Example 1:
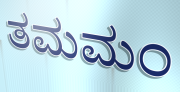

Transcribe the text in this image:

ತಮಮಂ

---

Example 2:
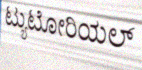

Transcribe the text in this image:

ಟ್ಯುಟೋರಿಯಲ್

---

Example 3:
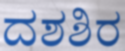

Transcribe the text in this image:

ದಶಶಿರ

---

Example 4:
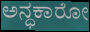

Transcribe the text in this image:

ಅನ್ಧಕಾರೋ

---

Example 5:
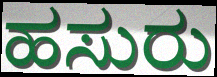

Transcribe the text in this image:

ಹಸುರು